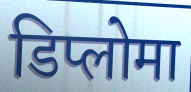
डिप्‍लोमा